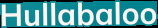
Hullabaloo